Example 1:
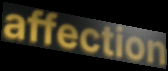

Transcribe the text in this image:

affection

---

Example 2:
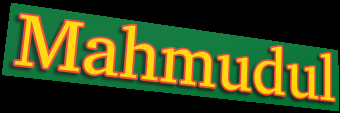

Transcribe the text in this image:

Mahmudul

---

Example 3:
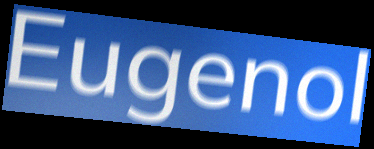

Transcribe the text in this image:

Eugenol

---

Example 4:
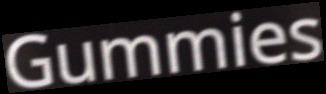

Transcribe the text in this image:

Gummies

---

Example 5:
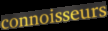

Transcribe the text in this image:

connoisseurs